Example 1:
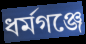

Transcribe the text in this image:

ধর্মগঞ্জে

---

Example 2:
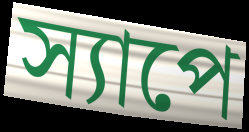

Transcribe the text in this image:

স্যাপে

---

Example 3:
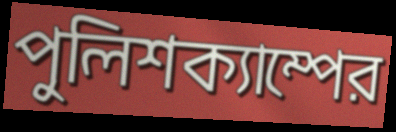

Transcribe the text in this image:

পুলিশক্যাম্পের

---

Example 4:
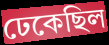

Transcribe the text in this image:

ঢেকেছিল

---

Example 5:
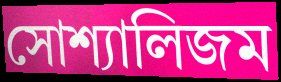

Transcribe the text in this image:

সোশ্যালিজম